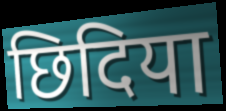
छिदिया